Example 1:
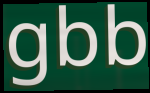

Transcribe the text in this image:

gbb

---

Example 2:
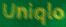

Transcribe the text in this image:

Uniqlo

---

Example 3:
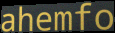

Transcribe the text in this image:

ahemfo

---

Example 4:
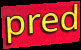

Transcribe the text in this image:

pred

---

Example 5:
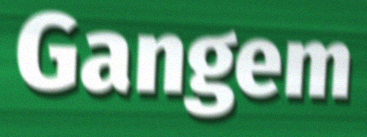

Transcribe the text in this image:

Gangem